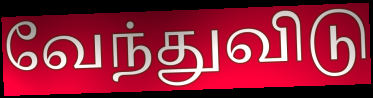
வேந்துவிடு